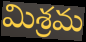
మిశ్రమ